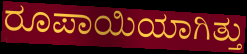
ರೂಪಾಯಿಯಾಗಿತ್ತು